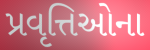
પ્રવૃત્તિઓના